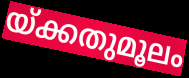
യ്ക്കതുമൂലം